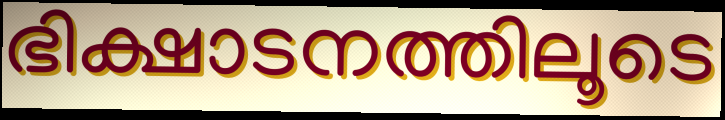
ഭിക്ഷാടനത്തിലൂടെ